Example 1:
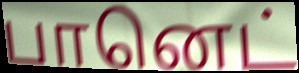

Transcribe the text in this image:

பானெட்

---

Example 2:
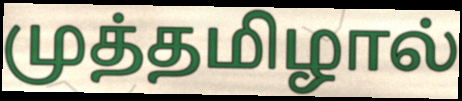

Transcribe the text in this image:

முத்தமிழால்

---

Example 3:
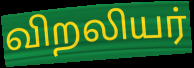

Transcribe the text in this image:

விறலியர்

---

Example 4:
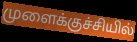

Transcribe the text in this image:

முளைக்குச்சியில்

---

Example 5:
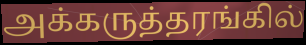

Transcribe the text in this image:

அக்கருத்தரங்கில்